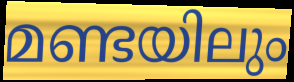
മണ്ടയിലും